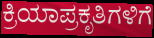
ಕ್ರಿಯಾಪ್ರಕೃತಿಗಳಿಗೆ